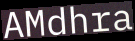
AMdhra